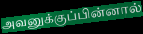
அவனுக்குப்பின்னால்